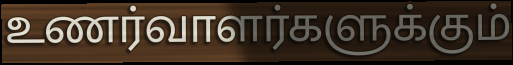
உணர்வாளர்களுக்கும்